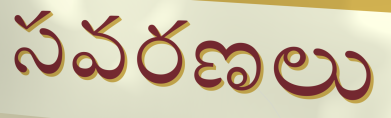
సవరణలు